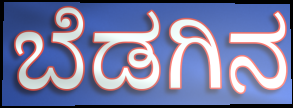
ಬೆಡಗಿನ